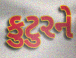
કુટુરને